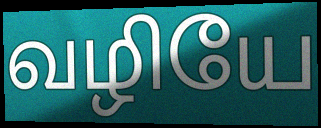
வழியே